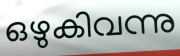
ഒഴുകിവന്നു